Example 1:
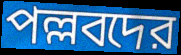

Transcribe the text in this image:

পল্লবদের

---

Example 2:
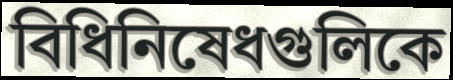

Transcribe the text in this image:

বিধিনিষেধগুলিকে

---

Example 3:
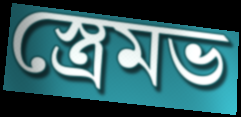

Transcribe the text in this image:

স্ত্রেমভ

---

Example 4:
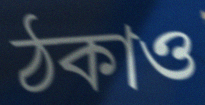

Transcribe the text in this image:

ঠকাও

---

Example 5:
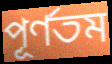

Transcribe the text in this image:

পূর্ণতম